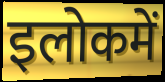
इलोकमें